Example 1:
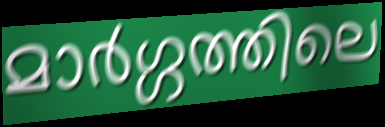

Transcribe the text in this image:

മാർഗ്ഗത്തിലെ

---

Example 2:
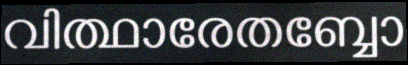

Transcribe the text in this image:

വിത്ഥാരേതബ്ബോ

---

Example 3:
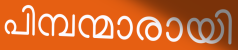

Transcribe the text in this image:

പിമ്പന്മാരായി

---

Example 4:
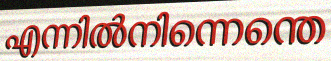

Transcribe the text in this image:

എന്നിൽനിന്നെന്തെ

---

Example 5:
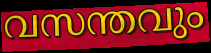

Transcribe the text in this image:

വസന്തവും